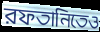
রফতানিতেও